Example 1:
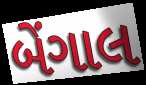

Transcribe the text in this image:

બેંગાલ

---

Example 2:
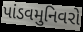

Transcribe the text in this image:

પાંડવમુનિવરો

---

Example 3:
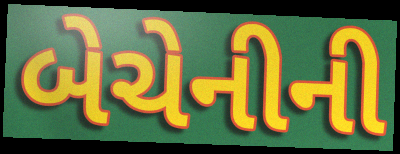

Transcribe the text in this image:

બેચેનીની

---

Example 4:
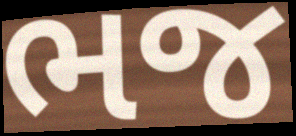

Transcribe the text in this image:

ભજ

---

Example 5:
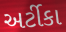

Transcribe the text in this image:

અર્ટીકા